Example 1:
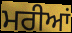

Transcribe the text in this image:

ਮਰੀਆਂ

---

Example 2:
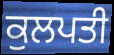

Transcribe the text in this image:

ਕੁਲਪਤੀ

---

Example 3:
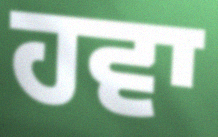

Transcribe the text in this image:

ਹਵਾ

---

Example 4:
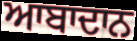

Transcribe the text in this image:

ਆਬਾਦਾਨ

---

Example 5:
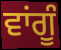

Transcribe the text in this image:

ਵਾਂਗੂੰ